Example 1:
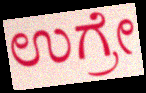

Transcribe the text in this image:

ಉಗ್ರೇ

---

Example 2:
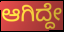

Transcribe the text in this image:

ಆಗಿದ್ದೇ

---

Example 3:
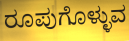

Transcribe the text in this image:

ರೂಪುಗೊಳ್ಳುವ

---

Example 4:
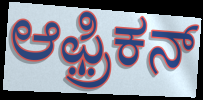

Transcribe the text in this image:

ಆಫ಼್ರಿಕನ್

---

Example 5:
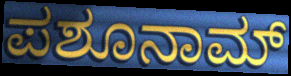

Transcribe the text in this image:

ಪಶೂನಾಮ್